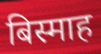
बिस्माह